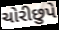
ચોરીછુપે